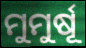
ମୁମୁର୍ଷୂ